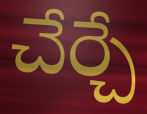
చేర్చే